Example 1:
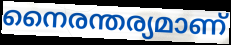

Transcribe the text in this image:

നൈരന്തര്യമാണ്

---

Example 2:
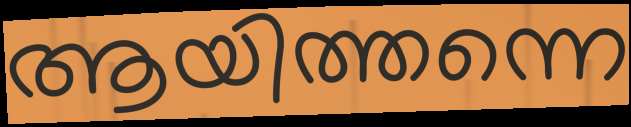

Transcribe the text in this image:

ആയിത്തന്നെ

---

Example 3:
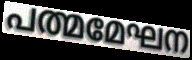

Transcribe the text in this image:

പത്മമേഘന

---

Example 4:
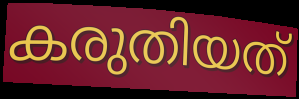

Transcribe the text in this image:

കരുതിയത്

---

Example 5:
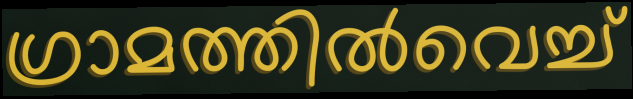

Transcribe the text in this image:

ഗ്രാമത്തിൽവെച്ച്